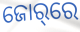
ଜୋର୍‌ରେ